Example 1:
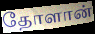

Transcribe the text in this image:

தோளான்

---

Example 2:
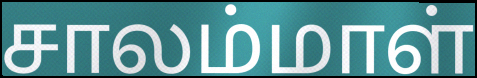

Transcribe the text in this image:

சாலம்மாள்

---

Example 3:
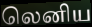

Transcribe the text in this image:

லெனிய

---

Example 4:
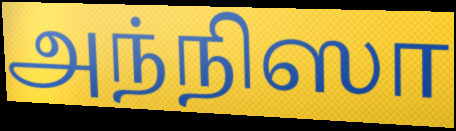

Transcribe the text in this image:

அந்நிஸா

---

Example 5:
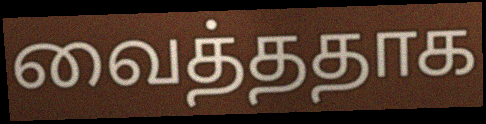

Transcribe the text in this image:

வைத்ததாக